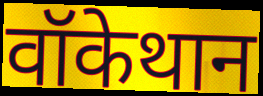
वॉकेथान